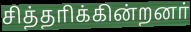
சித்தரிக்கின்றனர்